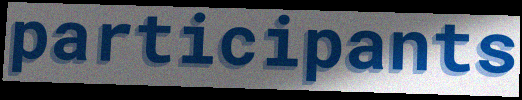
participants